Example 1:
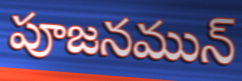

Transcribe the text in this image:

పూజనమున్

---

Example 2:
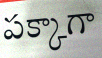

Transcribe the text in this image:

పక్కాగా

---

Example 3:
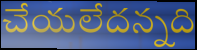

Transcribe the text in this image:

చేయలేదన్నది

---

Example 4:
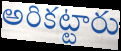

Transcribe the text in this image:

అరికట్టారు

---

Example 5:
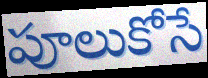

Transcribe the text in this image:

పూలుకోసే